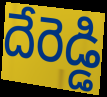
దేరెడ్డి